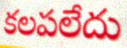
కలపలేదు